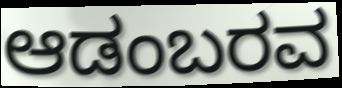
ಆಡಂಬರವ